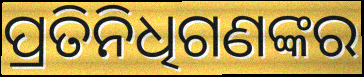
ପ୍ରତିନିଧିଗଣଙ୍କର